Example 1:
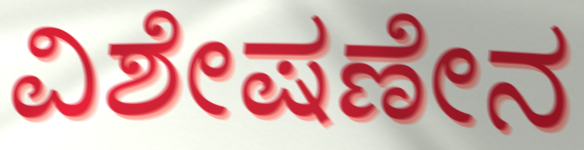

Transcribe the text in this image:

ವಿಶೇಷಣೇನ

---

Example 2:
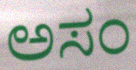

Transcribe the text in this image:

ಅಸಂ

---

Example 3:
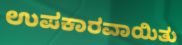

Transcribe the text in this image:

ಉಪಕಾರವಾಯಿತು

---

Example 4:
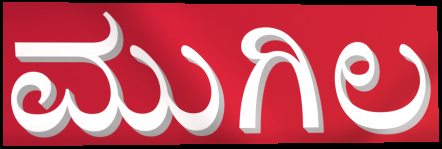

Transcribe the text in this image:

ಮುಗಿಲ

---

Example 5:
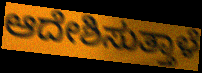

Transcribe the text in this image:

ಆದೇಶಿಸುತ್ತಾಳೆ